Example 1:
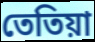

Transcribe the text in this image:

তেতিয়া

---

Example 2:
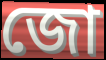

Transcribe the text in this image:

জো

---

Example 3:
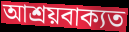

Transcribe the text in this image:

আশ্ৰয়বাক্যত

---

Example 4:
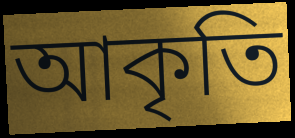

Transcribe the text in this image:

আকৃতি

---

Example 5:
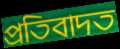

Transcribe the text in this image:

প্ৰতিবাদত